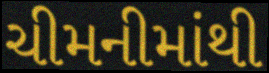
ચીમનીમાંથી